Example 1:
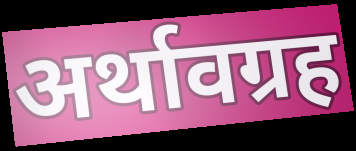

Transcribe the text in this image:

अर्थावग्रह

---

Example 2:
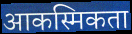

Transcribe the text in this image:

आकस्मिकता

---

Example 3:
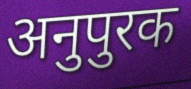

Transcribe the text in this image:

अनुपुरक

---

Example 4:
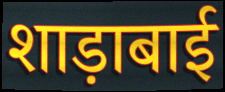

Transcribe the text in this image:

शाड़ाबाई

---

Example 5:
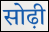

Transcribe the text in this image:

सोढ़ी